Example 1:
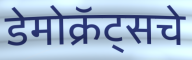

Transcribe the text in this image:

डेमोक्रॅट्सचे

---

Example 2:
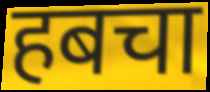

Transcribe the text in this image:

हबचा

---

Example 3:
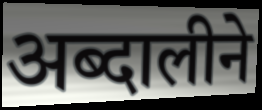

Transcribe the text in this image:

अब्दालीने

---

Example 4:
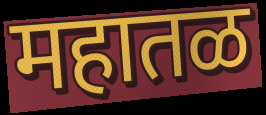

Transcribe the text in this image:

महातळ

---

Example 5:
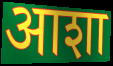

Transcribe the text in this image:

आशा